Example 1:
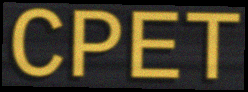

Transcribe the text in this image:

CPET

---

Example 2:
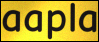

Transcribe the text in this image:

aapla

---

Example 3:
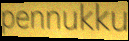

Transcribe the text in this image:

pennukku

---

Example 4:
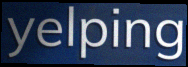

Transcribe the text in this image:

yelping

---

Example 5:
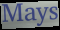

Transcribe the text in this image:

Mays